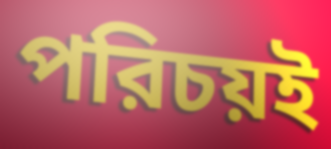
পরিচয়ই